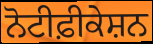
ਨੋਟੀਫ਼ੀਕੇਸ਼ਨ